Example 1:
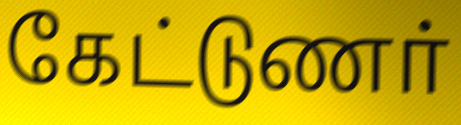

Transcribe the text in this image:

கேட்டுணர்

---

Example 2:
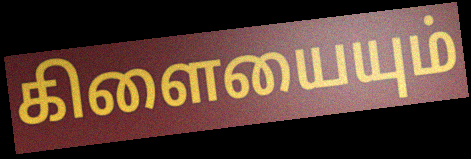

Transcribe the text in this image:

கிளையையும்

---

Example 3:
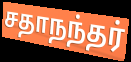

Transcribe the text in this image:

சதாநந்தர்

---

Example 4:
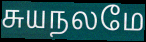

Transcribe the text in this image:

சுயநலமே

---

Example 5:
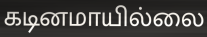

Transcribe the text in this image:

கடினமாயில்லை